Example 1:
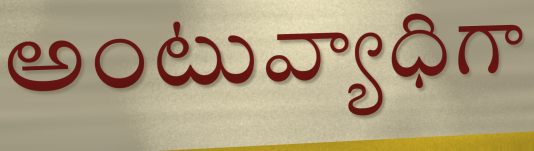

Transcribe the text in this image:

అంటువ్యాధిగా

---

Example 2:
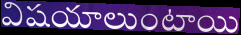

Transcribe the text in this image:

విషయాలుంటాయి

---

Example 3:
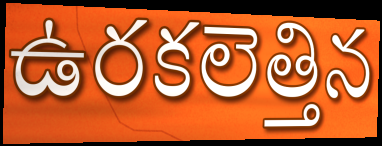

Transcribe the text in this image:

ఉరకలెత్తిన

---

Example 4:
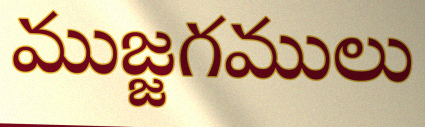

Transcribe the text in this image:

ముజ్జగములు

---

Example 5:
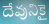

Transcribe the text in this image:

దేవునికై